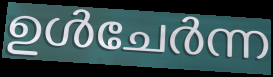
ഉൾചേർന്ന